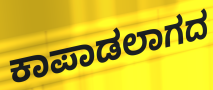
ಕಾಪಾಡಲಾಗದ